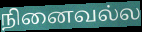
நினைவல்ல